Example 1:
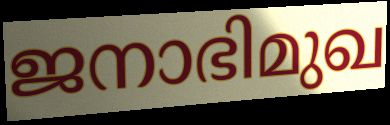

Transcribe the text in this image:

ജനാഭിമുഖ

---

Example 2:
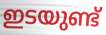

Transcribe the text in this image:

ഇടയുണ്ട്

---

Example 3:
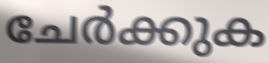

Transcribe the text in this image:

ചേർക്കുക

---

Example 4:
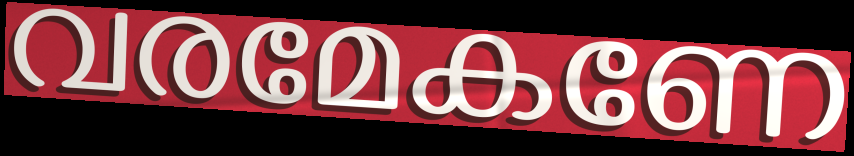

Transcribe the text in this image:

വരമേകണേ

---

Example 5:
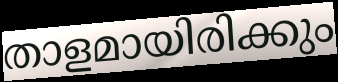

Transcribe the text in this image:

താളമായിരിക്കും